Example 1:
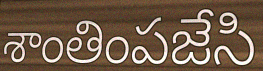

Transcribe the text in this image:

శాంతింపజేసి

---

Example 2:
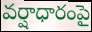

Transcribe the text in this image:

వర్షాధారంపై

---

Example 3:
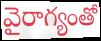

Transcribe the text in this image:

వైరాగ్యంతో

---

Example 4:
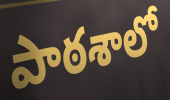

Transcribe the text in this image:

పాఠశాలో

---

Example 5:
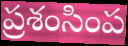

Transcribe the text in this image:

ప్రశంసింప